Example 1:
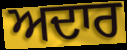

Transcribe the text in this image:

ਅਦਾਰ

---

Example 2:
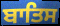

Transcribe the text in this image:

ਬਾਤਿਸ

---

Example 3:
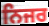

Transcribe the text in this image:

ਨਿਜਰ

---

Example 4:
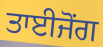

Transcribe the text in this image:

ਤਾਈਜੋਂਗ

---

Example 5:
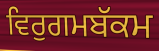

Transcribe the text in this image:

ਵਿਰੁਗਮਬੱਕਮ